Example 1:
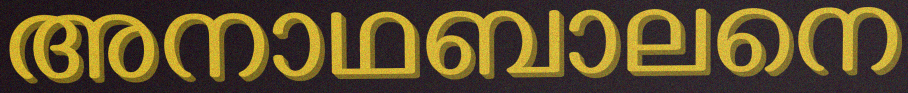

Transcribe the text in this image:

അനാഥബാലനെ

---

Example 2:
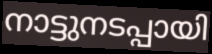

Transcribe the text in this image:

നാട്ടുനടപ്പായി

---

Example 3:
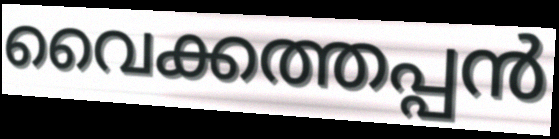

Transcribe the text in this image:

വൈക്കത്തപ്പൻ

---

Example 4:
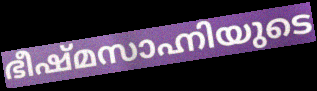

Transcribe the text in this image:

ഭീഷ്മസാഹ്നിയുടെ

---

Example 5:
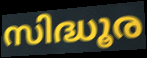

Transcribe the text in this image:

സിദ്ധൂര